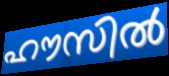
ഹൗസിൽ